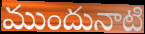
ముందునాటి